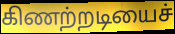
கிணற்றடியைச்